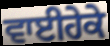
ਵਾਈਹੇਕੇ